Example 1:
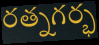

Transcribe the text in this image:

రత్నగర్భ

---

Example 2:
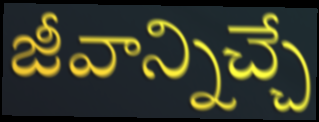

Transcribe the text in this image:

జీవాన్నిచ్చే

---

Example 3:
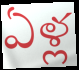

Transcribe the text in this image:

ఏళ్ల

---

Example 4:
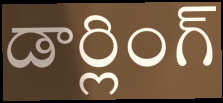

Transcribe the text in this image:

డార్లింగ్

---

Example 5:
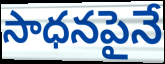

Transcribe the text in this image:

సాధనపైనే